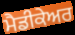
ਮੈਡੀਕੇਅਰ